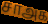
சாஅக